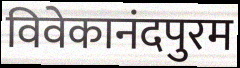
विवेकानंदपुरम